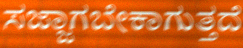
ಸಜ್ಜಾಗಬೇಕಾಗುತ್ತದೆ